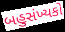
બહુસંખ્યકો